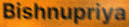
Bishnupriya